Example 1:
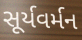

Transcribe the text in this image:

સૂર્યવર્મન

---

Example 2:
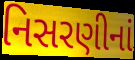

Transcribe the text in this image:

નિસરણીનાં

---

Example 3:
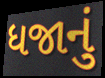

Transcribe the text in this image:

ધજાનું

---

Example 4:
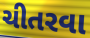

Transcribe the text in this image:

ચીતરવા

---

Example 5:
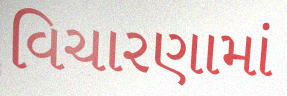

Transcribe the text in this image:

વિચારણામાં